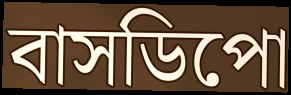
বাসডিপো